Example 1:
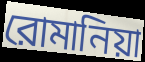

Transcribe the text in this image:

রোমানিয়া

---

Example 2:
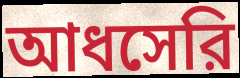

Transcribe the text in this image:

আধসেরি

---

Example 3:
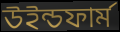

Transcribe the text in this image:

উইন্ডফার্ম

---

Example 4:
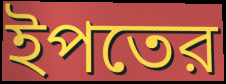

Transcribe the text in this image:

ইপতের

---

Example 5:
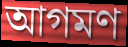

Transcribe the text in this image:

আগমণ